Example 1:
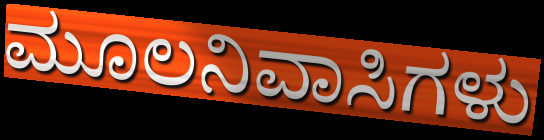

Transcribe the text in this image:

ಮೂಲನಿವಾಸಿಗಳು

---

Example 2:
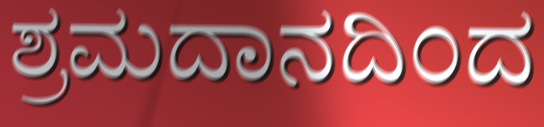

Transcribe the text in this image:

ಶ್ರಮದಾನದಿಂದ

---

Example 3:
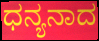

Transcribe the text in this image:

ಧನ್ಯನಾದ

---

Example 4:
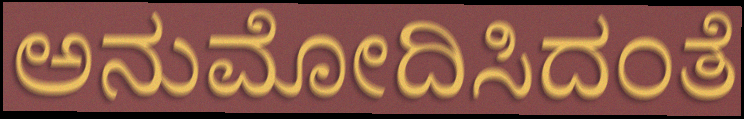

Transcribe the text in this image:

ಅನುಮೋದಿಸಿದಂತೆ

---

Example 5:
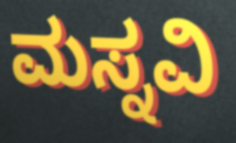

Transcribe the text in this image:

ಮಸ್ನವಿ